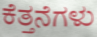
ಕೆತ್ತನೆಗಳು